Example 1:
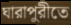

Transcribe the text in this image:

ঘারাপুরীতে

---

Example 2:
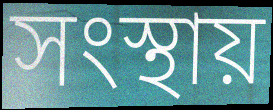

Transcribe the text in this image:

সংস্থায়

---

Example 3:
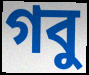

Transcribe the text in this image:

গবু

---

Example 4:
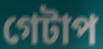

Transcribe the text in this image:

গেটাপ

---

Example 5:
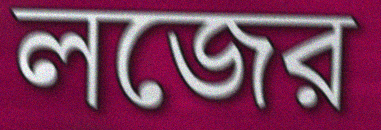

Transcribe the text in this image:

লজের